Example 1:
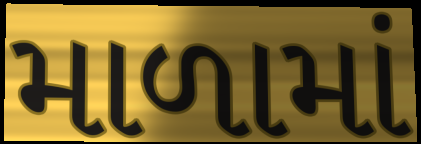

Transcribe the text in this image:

માળામાં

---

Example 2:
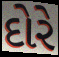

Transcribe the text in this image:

દોરે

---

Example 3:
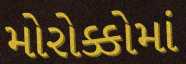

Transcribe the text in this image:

મોરોક્કોમાં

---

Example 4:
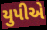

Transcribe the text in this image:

યુપીએ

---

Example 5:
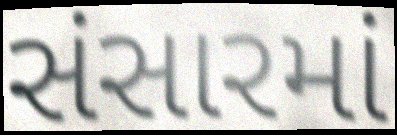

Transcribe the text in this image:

સંસારમાં